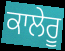
ਕਾਲੇਰੂ